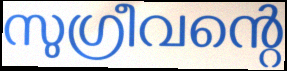
സുഗ്രീവന്റെ